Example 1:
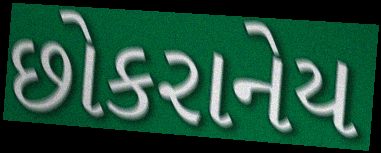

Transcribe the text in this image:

છોકરાનેય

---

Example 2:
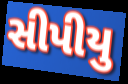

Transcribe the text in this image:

સીપીયુ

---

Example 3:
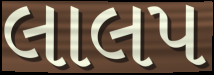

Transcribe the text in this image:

લાલપ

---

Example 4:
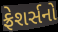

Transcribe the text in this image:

ફ્રેશર્સનો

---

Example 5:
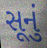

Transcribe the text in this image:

સૂનું